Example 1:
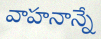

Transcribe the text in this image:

వాహనాన్నే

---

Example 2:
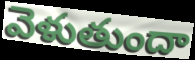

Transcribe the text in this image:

వెళుతుందా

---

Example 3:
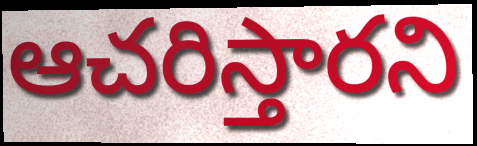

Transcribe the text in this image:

ఆచరిస్తారని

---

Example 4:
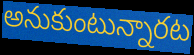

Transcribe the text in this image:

అనుకుంటున్నారట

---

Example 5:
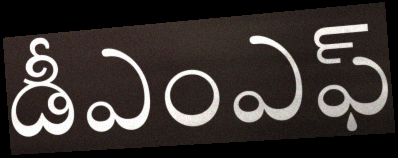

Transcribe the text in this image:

డీఎంఎఫ్